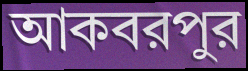
আকবরপুর